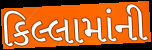
કિલ્લામાંની